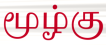
மூழ்கு